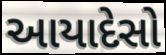
આયાદેસો